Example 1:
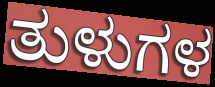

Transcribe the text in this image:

ತುಳುಗಳ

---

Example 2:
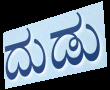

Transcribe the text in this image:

ದುಡು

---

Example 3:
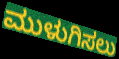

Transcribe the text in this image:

ಮುಳುಗಿಸಲು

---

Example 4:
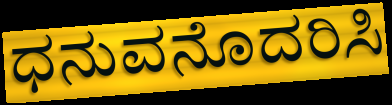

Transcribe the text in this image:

ಧನುವನೊದರಿಸಿ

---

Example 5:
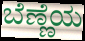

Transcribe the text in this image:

ಬೆಣ್ಣೆಯ